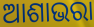
ଆଶାଭରା